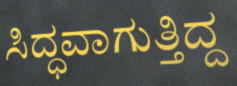
ಸಿದ್ಧವಾಗುತ್ತಿದ್ದ